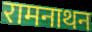
रामनाथन